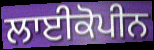
ਲਾਈਕੋਪੀਨ